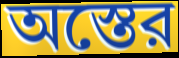
অস্তের